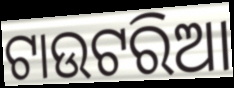
ଟାଉଟରିଆ